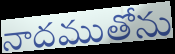
నాదముతోను